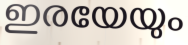
ഇരയേയും